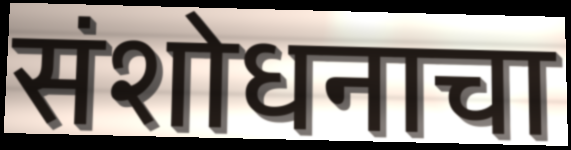
संशोधनाचा